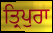
ਤ੍ਰਿਪੁਰਾ